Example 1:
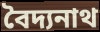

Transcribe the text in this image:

বৈদ্যনাথ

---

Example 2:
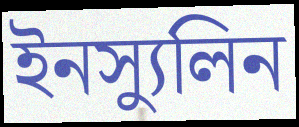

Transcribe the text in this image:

ইনস্যুলিন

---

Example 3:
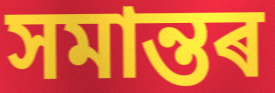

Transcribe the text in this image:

সমান্তৰ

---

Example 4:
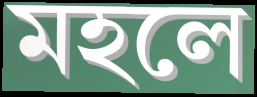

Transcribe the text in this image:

মহলে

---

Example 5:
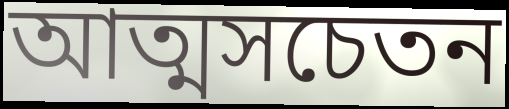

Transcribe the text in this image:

আত্মসচেতন